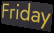
Friday